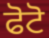
ਫੋਟੋ